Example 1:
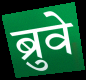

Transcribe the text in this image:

ब्रुवे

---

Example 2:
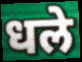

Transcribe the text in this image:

धले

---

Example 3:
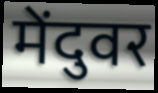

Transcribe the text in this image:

मेंदुवर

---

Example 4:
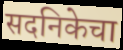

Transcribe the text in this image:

सदनिकेचा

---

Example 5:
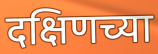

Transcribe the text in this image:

दक्षिणच्या